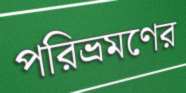
পরিভ্রমণের